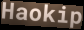
Haokip